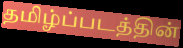
தமிழ்ப்படத்தின்